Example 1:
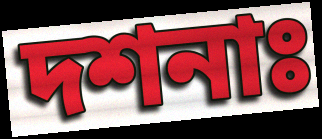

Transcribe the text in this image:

দশনাঃ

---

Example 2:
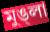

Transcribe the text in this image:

মুঙ্লা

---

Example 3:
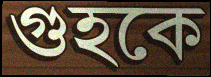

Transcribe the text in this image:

গুহকে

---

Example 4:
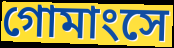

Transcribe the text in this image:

গোমাংসে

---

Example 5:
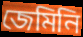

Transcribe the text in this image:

জেমিনি